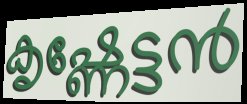
കൃഷ്ണേട്ടൻ